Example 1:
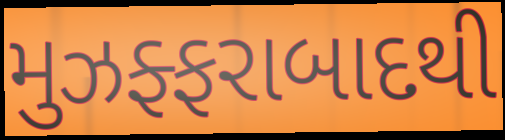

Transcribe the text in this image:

મુઝફ્ફરાબાદથી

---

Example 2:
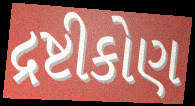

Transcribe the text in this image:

દ્રષ્ટીકોણ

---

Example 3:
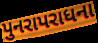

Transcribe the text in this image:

પુનરાપરાધના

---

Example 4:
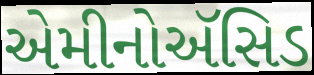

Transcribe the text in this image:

એમીનોઍસિડ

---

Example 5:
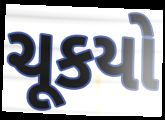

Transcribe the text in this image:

ચૂકયો